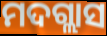
ମଦଗ୍ଲାସ